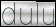
dulu